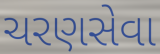
ચરણસેવા